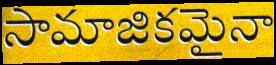
సామాజికమైనా